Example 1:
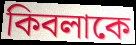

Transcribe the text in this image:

কিবলাকে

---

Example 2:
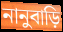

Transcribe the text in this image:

নানুবাড়ি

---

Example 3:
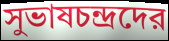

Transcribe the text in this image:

সুভাষচন্দ্রদের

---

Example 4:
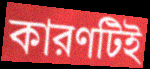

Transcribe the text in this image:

কারণটিই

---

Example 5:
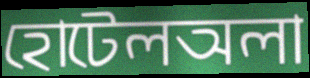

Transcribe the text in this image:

হোটেলঅলা